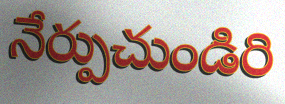
నేర్పుచుండిరి